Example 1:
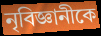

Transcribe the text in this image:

নৃবিজ্ঞানীকে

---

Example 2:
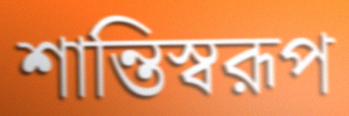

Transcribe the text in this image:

শান্তিস্বরূপ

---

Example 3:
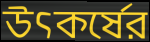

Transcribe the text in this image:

উৎকর্ষের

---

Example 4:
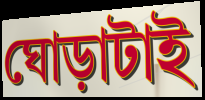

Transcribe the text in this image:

ঘোড়াটাই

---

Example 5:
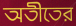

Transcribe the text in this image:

অতীতের